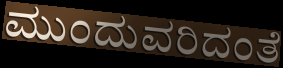
ಮುಂದುವರಿದಂತೆ